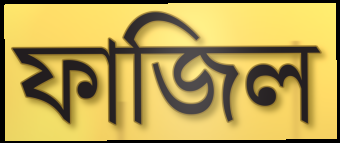
ফাজিল